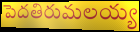
పెదతిరుమలయ్య